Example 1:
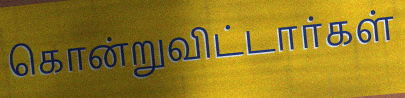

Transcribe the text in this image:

கொன்றுவிட்டார்கள்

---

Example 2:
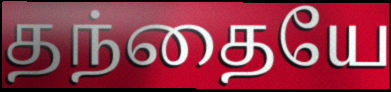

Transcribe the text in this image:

தந்தையே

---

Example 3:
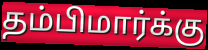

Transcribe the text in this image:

தம்பிமார்க்கு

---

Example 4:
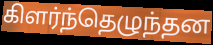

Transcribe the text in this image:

கிளர்ந்தெழுந்தன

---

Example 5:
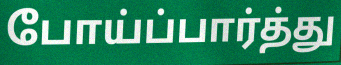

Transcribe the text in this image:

போய்ப்பார்த்து